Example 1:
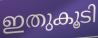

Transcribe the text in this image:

ഇതുകൂടി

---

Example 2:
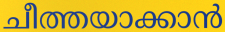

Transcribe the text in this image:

ചീത്തയാക്കാൻ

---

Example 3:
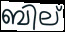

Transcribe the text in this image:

ബില്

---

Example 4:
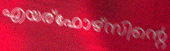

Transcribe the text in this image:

എയര്ഫോഴ്സിന്റെ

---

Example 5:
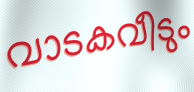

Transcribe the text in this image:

വാടകവീടും